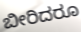
ಬೀರಿದರೂ